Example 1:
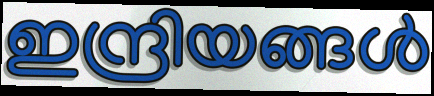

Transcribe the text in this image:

ഇന്ദ്രിയങ്ങൾ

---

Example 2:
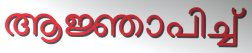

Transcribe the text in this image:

ആജ്ഞാപിച്ച്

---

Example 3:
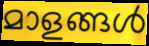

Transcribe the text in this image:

മാളങ്ങൾ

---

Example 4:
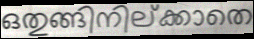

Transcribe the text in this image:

ഒതുങ്ങിനില്ക്കാതെ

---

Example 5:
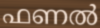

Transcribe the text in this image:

ഫണൽ